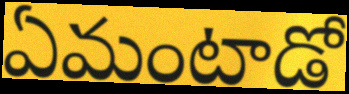
ఏమంటాడో